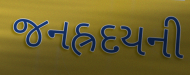
જનહ્રદયની